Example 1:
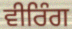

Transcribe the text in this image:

ਵੀਰਿੰਗ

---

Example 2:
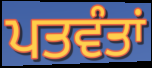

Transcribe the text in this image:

ਪਤਵੰਤਾਂ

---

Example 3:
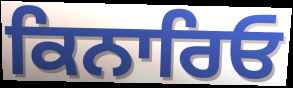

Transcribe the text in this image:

ਕਿਨਾਰਿਓ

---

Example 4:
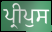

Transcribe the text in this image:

ਪ੍ਰੀਪੁਸ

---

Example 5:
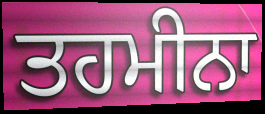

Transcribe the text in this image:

ਤਹਮੀਨਾ